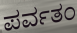
ಪರ್ವತಂ